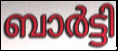
ബാർട്ടി